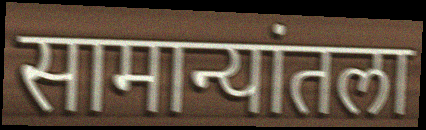
सामान्यांतला